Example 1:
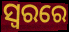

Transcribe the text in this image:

ସ୍ବରରେ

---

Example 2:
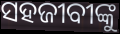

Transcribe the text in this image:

ସହଜୀବୀଙ୍କୁ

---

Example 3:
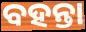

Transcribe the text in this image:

ବହନ୍ତା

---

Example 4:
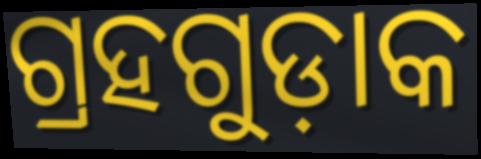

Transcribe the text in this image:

ଗ୍ରହଗୁଡ଼ାକ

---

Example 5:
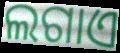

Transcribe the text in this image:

ଲଗାଏ